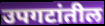
उपगटांतील